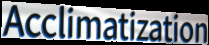
Acclimatization